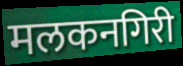
मलकनगिरी